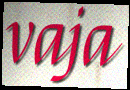
vaja